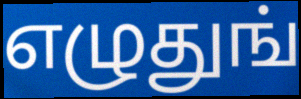
எழுதுங்